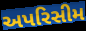
અપરિસીમ